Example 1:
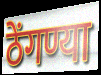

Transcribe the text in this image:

ठेंगण्या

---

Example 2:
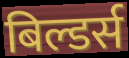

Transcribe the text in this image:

बिल्डर्स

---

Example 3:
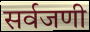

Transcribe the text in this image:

सर्वजणी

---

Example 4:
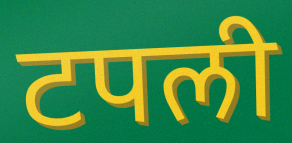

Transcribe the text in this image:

टपली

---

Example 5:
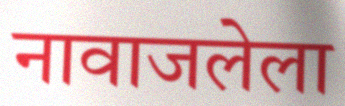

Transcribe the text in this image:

नावाजलेला